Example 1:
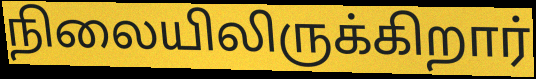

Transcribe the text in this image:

நிலையிலிருக்கிறார்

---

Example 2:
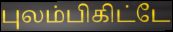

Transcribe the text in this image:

புலம்பிகிட்டே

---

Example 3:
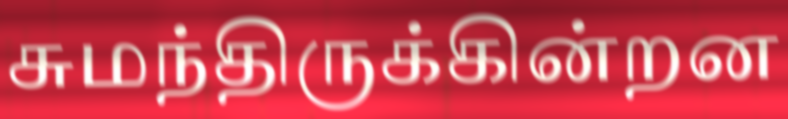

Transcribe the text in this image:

சுமந்திருக்கின்றன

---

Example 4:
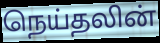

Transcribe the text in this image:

நெய்தலின்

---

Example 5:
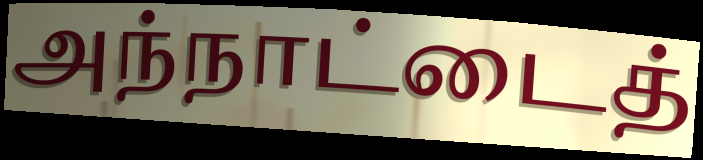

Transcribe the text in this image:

அந்நாட்டைத்